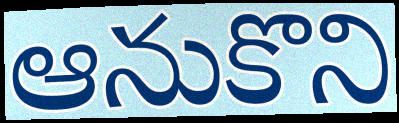
ఆనుకొని